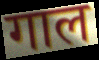
गाल